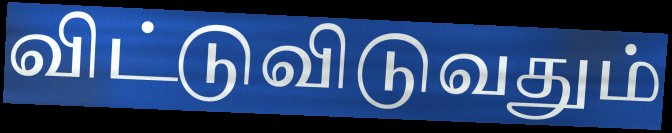
விட்டுவிடுவதும்